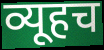
व्यूहच